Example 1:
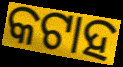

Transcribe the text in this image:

କଟାହ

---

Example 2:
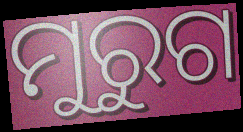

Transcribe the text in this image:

ମୁରୁଗ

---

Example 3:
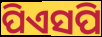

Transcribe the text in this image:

ପିଏସପି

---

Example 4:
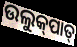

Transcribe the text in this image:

ଉଲୁକ୍‌ପାତ୍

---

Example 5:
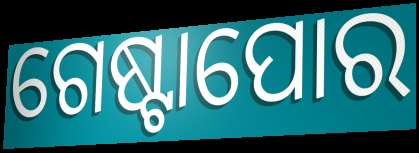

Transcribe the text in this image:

ଗେଷ୍ଟାପୋର